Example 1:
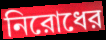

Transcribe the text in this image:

নিরোধের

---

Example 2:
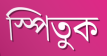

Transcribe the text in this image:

স্পিতুক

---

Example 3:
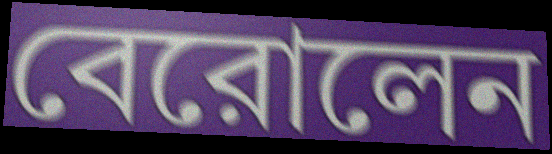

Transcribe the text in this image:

বেরোলেন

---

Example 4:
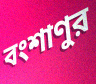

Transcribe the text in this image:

বংশাণুর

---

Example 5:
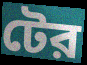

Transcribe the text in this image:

টের